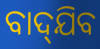
ବାଦ୍‌ଯିବ